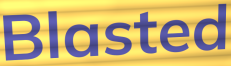
Blasted